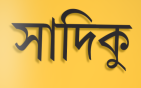
সাদিকু